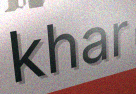
khar